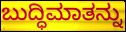
ಬುದ್ಧಿಮಾತನ್ನು